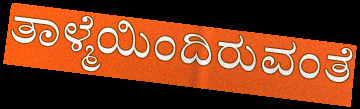
ತಾಳ್ಮೆಯಿಂದಿರುವಂತೆ